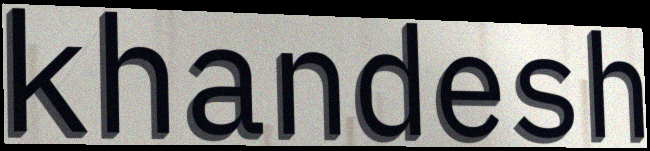
khandesh